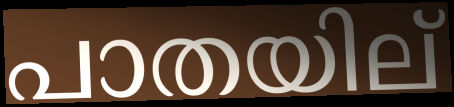
പാതയില്